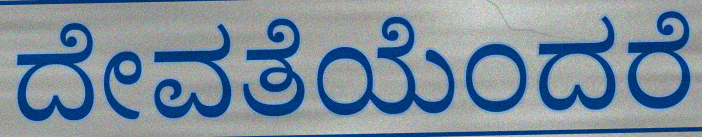
ದೇವತೆಯೆಂದರೆ